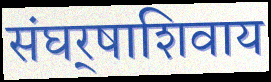
संघर्षाशिवाय